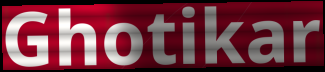
Ghotikar